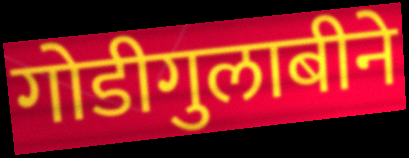
गोडीगुलाबीने